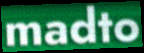
madto